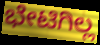
ಭೇಟಿಗಿಲ್ಲ